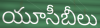
యూసీబీలు